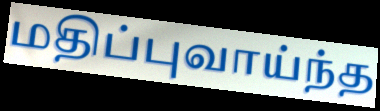
மதிப்புவாய்ந்த